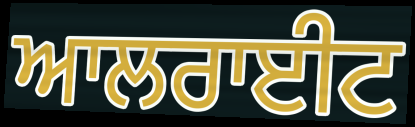
ਆਲਰਾਈਟ